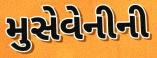
મુસેવેનીની